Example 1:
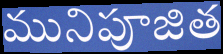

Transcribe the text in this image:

మునిపూజిత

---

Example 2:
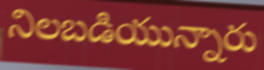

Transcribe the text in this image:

నిలబడియున్నారు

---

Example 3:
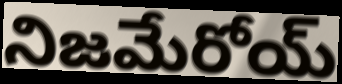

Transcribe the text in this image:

నిజమేరోయ్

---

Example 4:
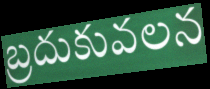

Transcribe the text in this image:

బ్రదుకువలన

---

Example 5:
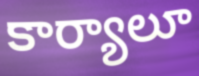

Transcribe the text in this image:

కార్యాలూ